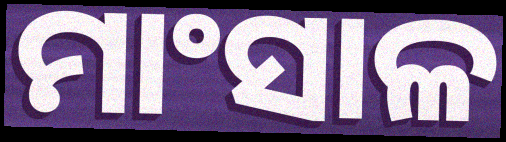
ମାଂସାଳ